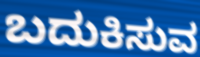
ಬದುಕಿಸುವ